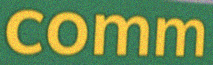
comm